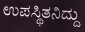
ಉಪಸ್ಥಿತನಿದ್ದು